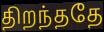
திறந்ததே